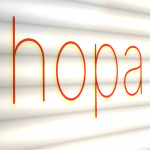
hopa